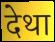
देथा